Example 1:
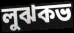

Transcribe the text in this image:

লুঝকভ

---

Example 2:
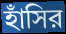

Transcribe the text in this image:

হাঁসির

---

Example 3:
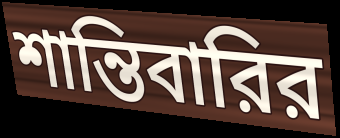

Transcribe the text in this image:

শান্তিবারির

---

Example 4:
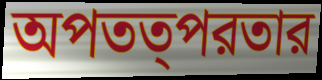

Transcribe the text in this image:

অপতত্পরতার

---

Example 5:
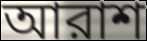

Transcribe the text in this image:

আরাশ